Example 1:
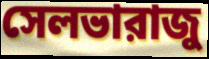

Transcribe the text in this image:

সেলভারাজু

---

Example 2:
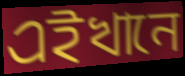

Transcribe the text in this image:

এইখানে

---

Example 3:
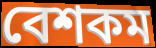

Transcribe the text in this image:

বেশকম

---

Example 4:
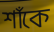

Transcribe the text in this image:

শাঁকে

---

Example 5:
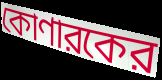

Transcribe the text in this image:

কোণারকের